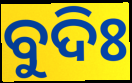
ବୁଦିଃ